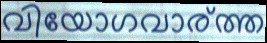
വിയോഗവാര്ത്ത